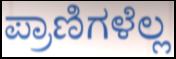
ಪ್ರಾಣಿಗಳೆಲ್ಲ